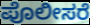
ಪೊಲೀಸರೆ